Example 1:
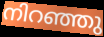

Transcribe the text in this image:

നിറഞ്ഞു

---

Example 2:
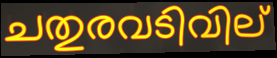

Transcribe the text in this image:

ചതുരവടിവില്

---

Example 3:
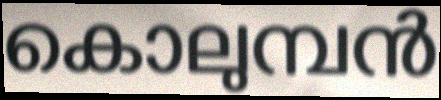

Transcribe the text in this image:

കൊലുമ്പൻ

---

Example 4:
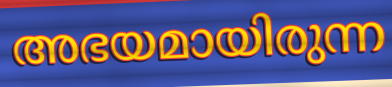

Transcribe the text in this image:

അഭയമായിരുന്ന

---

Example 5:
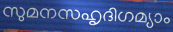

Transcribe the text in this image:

സുമനസഹൃദിഗമ്യാം